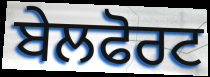
ਬੇਲਫੋਰਟ